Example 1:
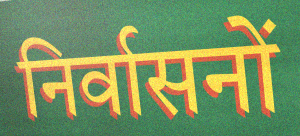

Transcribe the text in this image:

निर्वासनों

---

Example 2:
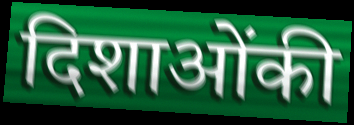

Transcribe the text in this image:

दिशाओंकी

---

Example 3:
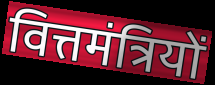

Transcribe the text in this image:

वित्तमंत्रियों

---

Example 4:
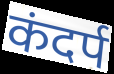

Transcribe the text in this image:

कंदर्प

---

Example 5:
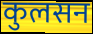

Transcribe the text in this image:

कुलसन